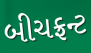
બીચફ્રન્ટ